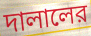
দালালের